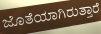
ಜೊತೆಯಾಗಿರುತ್ತಾರೆ